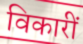
विकारीं